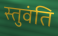
स्तुवंति